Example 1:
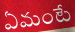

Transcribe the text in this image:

ఏమంటే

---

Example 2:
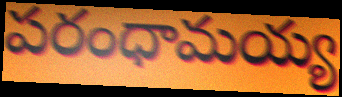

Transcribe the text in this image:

పరంధామయ్య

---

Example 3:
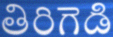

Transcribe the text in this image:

తిరిగెడి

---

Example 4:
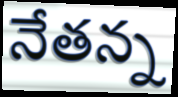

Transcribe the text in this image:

నేతన్న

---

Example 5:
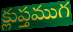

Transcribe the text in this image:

క్లుప్తముగ